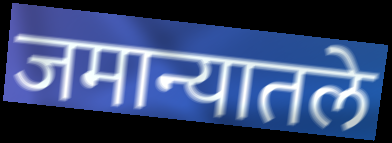
जमान्यातले